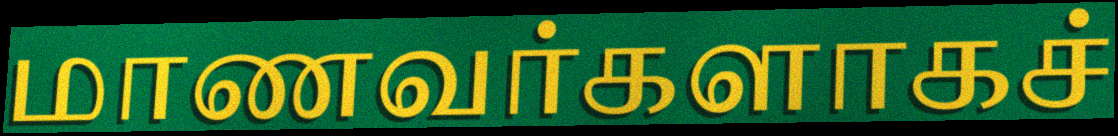
மாணவர்களாகச்